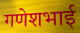
गणेशभाई